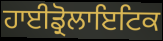
ਹਾਈਡ੍ਰੋਲਾਇਟਿਕ